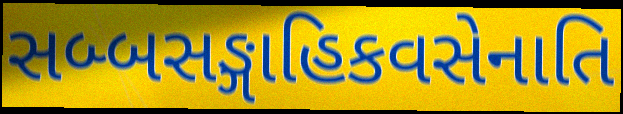
સબ્બસઙ્ગાહિકવસેનાતિ